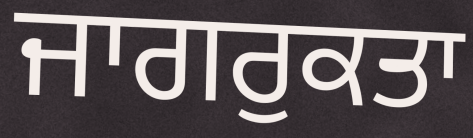
ਜਾਗਰੁਕਤਾ